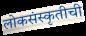
लोकसंस्कृतीची